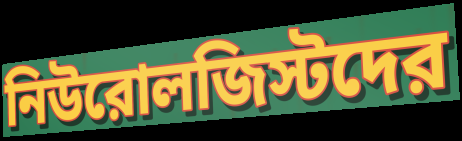
নিউরোলজিস্টদের